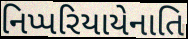
નિપ્પરિયાયેનાતિ